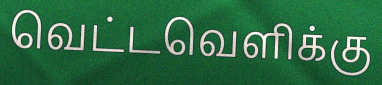
வெட்டவெளிக்கு